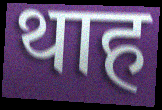
थाह